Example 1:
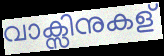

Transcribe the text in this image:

വാക്സിനുകള്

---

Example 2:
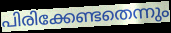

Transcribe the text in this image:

പിരിക്കേണ്ടതെന്നും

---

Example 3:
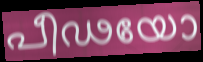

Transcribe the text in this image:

പീഢയോ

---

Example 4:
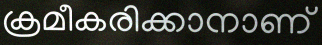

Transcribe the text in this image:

ക്രമീകരിക്കാനാണ്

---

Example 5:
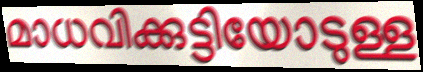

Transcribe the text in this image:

മാധവിക്കുട്ടിയോടുള്ള